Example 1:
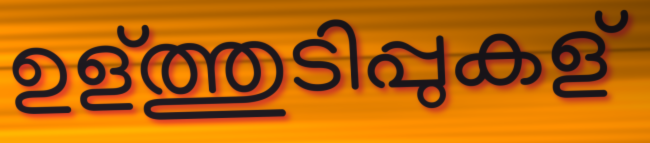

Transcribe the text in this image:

ഉള്ത്തുടിപ്പുകള്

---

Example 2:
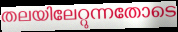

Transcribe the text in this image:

തലയിലേറ്റുന്നതോടെ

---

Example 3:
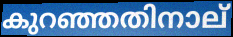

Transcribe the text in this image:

കുറഞ്ഞതിനാല്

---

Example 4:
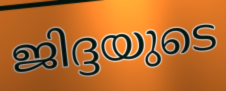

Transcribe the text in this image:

ജിദ്ദയുടെ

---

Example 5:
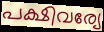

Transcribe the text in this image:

പക്ഷിവര്യേ